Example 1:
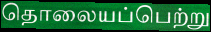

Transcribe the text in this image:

தொலையப்பெற்று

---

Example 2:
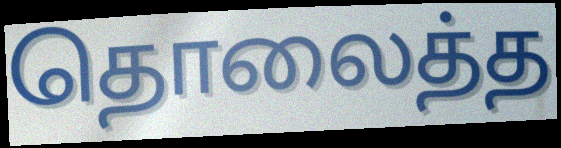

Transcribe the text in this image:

தொலைத்த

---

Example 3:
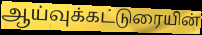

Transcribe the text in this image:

ஆய்வுக்கட்டுரையின்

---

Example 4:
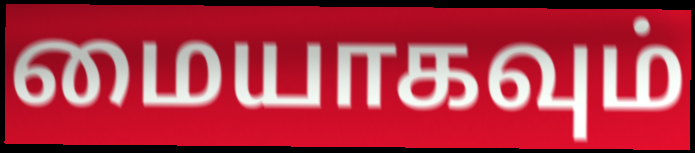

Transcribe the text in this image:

மையாகவும்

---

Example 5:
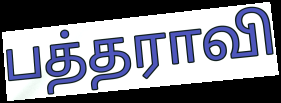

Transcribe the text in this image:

பத்தராவி